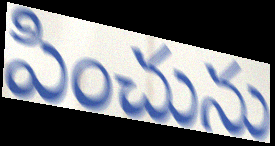
పించును